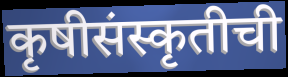
कृषीसंस्कृतीची